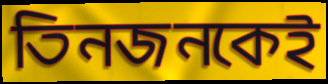
তিনজনকেই